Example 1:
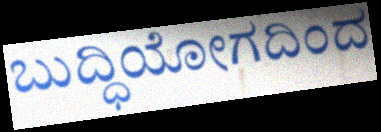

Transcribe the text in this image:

ಬುದ್ಧಿಯೋಗದಿಂದ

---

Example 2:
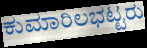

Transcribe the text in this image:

ಕುಮಾರಿಲಭಟ್ಟರು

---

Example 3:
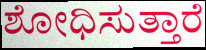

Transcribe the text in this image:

ಶೋಧಿಸುತ್ತಾರೆ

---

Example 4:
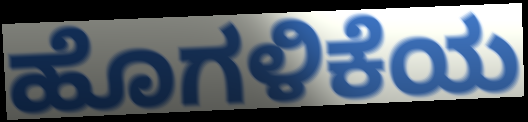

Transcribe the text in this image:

ಹೊಗಳಿಕೆಯ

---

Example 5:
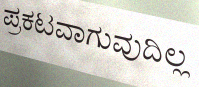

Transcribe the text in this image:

ಪ್ರಕಟವಾಗುವುದಿಲ್ಲ